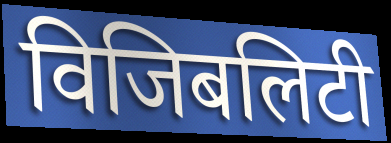
विजिबलिटी